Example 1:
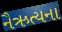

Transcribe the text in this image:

નૈઋત્યના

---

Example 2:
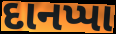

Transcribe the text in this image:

દાનપ્પા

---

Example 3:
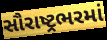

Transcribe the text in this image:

સૌરાષ્ટ્રભરમાં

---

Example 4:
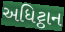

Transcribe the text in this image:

અધિટ્ઠાન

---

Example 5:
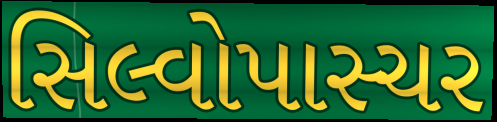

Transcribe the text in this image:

સિલ્વોપાસ્ચર